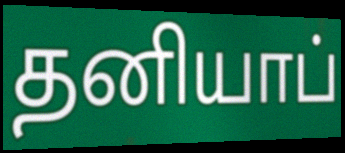
தனியாப்